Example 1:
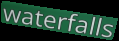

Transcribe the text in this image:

waterfalls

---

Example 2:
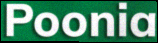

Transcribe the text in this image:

Poonia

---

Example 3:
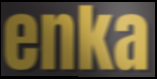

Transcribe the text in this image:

enka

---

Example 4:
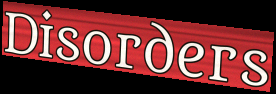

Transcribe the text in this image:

Disorders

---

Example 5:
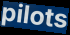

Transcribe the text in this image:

pilots